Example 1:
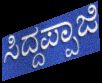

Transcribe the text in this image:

ಸಿದ್ದಪ್ಪಾಜಿ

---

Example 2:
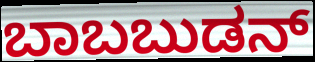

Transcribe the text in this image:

ಬಾಬಬುಡನ್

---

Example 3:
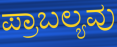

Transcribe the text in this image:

ಪ್ರಾಬಲ್ಯವು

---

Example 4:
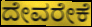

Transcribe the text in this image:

ದೇವರೇಕೆ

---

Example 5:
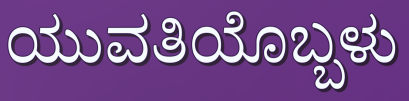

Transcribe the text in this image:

ಯುವತಿಯೊಬ್ಬಳು